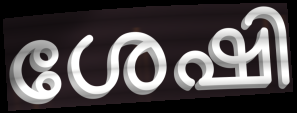
ശേഷി